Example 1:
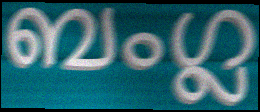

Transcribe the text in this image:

ബംഗ്ല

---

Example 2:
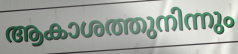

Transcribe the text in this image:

ആകാശത്തുനിന്നും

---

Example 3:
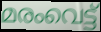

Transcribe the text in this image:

മരംവെട്ട്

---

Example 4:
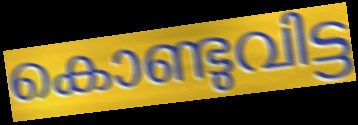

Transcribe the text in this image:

കൊണ്ടുവിട്ട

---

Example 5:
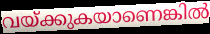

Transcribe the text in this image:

വയ്ക്കുകയാണെങ്കിൽ